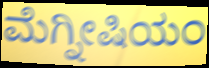
ಮೆಗ್ನೀಷಿಯಂ